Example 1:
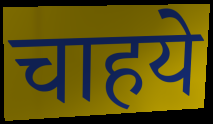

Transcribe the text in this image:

चाहये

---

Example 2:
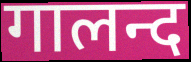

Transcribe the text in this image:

गालन्द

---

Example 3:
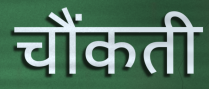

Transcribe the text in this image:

चौंकती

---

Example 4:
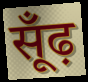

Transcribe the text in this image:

सूँढ़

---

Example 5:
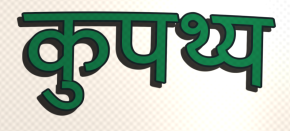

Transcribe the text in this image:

कुपथ्य